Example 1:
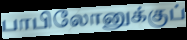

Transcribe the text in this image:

பாபிலோனுக்குப்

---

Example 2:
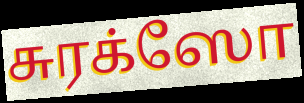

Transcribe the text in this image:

சுரக்ஸோ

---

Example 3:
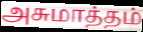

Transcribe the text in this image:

அசுமாத்தம்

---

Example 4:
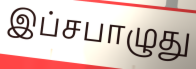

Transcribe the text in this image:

இப்சபாழுது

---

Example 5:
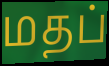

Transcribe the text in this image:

மதப்